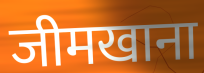
जीमखाना